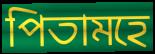
পিতামহে